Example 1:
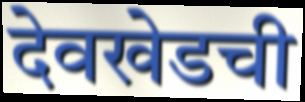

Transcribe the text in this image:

देवखेडची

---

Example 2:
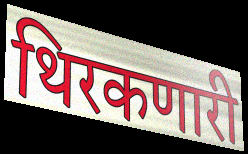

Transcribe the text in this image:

थिरकणारी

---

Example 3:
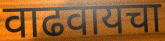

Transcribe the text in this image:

वाढवायचा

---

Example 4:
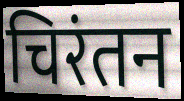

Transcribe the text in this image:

चिरंतन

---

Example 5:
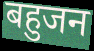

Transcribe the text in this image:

बहुजन